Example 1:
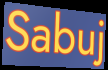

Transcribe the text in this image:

Sabuj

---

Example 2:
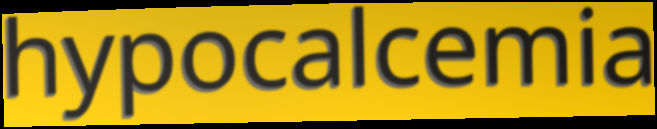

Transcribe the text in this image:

hypocalcemia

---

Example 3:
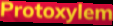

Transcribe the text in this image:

Protoxylem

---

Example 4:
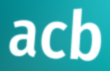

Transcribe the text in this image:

acb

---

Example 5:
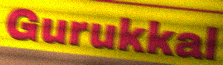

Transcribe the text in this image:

Gurukkal